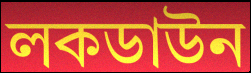
লকডাউন